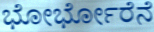
ಭೋರ್ಭೋರೆನೆ